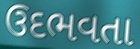
ઉદભવતા